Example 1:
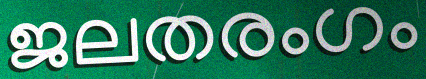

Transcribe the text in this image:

ജലതരംഗം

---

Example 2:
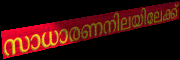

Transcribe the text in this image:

സാധാരണനിലയിലേക്ക്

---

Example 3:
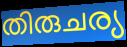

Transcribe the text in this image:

തിരുചര്യ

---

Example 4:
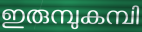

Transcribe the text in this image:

ഇരുമ്പുകമ്പി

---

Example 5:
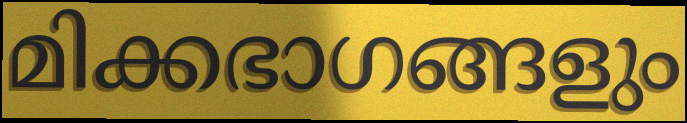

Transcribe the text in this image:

മിക്കഭാഗങ്ങളും